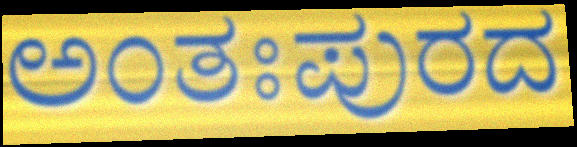
ಅಂತಃಪುರದ